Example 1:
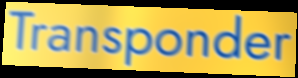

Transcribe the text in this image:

Transponder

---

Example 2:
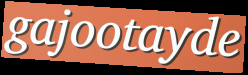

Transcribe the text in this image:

gajootayde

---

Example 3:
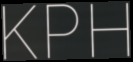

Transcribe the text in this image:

KPH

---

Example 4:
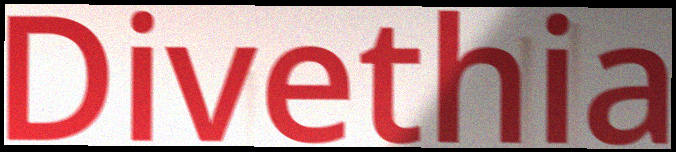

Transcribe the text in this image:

Divethia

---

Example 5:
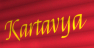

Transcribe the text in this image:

Kartavya